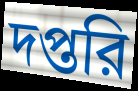
দপ্তরি